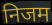
निजम